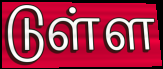
டுள்ள